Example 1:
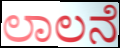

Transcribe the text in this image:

ಲಾಲನೆ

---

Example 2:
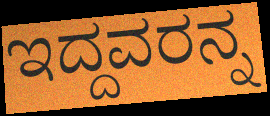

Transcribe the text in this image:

ಇದ್ದವರನ್ನ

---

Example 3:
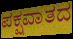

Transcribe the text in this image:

ಪಕ್ಷವಾತದ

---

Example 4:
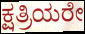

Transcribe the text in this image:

ಕ್ಷತ್ರಿಯರೇ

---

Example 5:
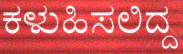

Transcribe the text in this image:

ಕಳುಹಿಸಲಿದ್ದ